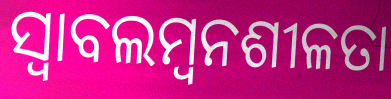
ସ୍ୱାବଲମ୍ୱନଶୀଳତା